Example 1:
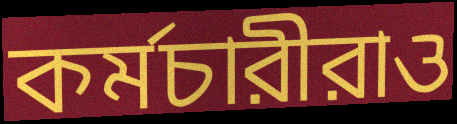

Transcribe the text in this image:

কর্মচারীরাও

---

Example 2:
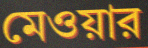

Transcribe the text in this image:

মেওয়ার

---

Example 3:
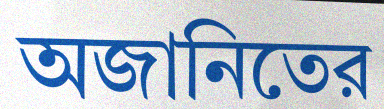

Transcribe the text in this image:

অজানিতের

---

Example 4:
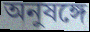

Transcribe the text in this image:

অনুষঙ্গে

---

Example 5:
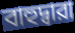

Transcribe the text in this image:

বাহুদ্বারা